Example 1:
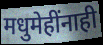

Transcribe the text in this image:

मधुमेहींनाही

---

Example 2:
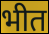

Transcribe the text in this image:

भीत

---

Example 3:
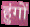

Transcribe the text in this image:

हुंगों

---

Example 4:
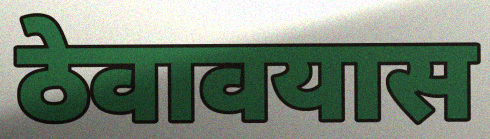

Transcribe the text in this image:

ठेवावयास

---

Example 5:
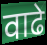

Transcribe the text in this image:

वाढे